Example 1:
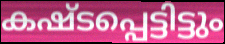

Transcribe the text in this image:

കഷ്ടപ്പെട്ടിട്ടും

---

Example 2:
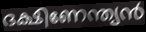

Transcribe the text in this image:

ദക്ഷിണേന്ത്യൻ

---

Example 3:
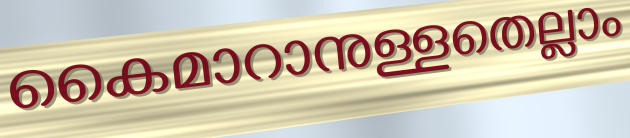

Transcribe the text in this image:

കൈമാറാനുള്ളതെല്ലാം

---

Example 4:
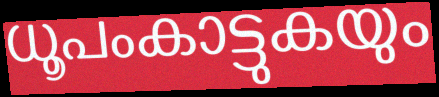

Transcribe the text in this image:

ധൂപംകാട്ടുകയും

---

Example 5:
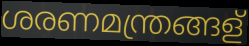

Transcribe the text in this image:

ശരണമന്ത്രങ്ങള്